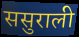
ससुराली